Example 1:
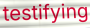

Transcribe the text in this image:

testifying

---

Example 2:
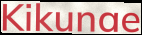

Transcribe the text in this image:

Kikunae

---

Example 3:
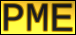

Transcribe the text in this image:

PME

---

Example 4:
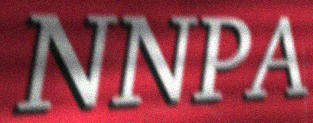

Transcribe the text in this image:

NNPA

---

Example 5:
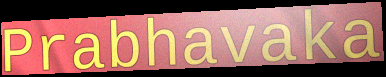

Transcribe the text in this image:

Prabhavaka